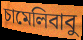
চামেলিবাবু